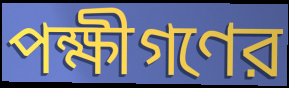
পক্ষীগণের